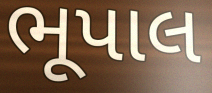
ભૂપાલ